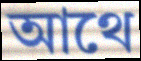
আথে